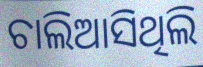
ଚାଲିଆସିଥିଲି